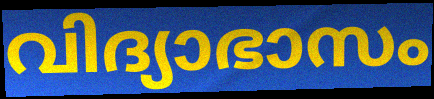
വിദ്യാഭാസം